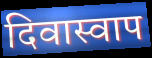
दिवास्वाप